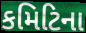
કમિટિના